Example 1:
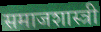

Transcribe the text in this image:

समाजशास्त्री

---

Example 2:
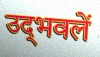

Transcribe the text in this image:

उद्‍भवलें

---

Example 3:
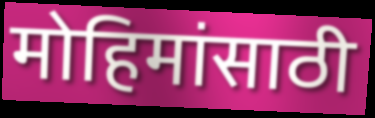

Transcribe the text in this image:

मोहिमांसाठी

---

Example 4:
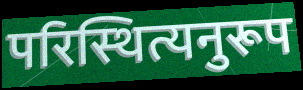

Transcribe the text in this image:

परिस्थित्यनुरूप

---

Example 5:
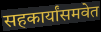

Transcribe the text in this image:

सहकार्यांसमवेत